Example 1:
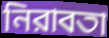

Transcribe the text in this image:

নিরাবতা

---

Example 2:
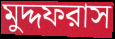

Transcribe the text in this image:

মুদ্দফরাস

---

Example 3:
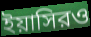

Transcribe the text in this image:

ইয়াসিরও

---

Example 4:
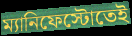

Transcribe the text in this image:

ম্যানিফেস্টোতেই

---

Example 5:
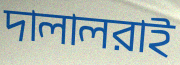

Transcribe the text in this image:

দালালরাই